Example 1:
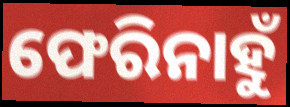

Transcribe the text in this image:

ଫେରିନାହୁଁ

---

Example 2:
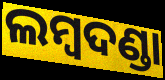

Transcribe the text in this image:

ଲମ୍ୱଦଣ୍ଡା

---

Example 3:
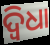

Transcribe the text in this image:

ଦ୍ବିଧା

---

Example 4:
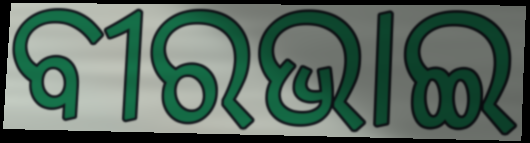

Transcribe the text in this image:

ବୀରଭାଇ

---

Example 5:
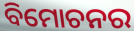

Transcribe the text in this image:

ବିମୋଚନର